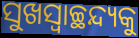
ସୁଖସ୍ଵାଚ୍ଛନ୍ଦ୍ୟକୁ